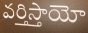
వర్తిస్తాయో